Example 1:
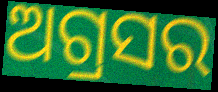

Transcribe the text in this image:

ଅଗ୍ରସର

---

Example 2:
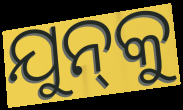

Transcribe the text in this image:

ଯୁନ୍‍କୁ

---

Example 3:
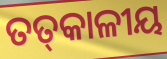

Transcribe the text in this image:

ତତ୍‌କାଳୀୟ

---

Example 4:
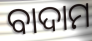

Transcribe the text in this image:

ବାଦାମ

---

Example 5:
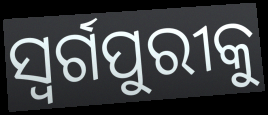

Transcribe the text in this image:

ସ୍ୱର୍ଗପୁରୀକୁ